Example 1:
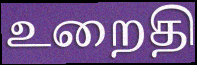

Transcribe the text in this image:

உறைதி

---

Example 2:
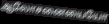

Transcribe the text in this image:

ஆலோசனையையோ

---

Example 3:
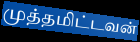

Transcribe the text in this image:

முத்தமிட்டவன்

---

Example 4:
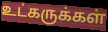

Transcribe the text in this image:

உட்கருக்கள்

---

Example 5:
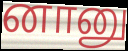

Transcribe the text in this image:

னானு